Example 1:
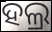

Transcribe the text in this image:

ହଲ୍ର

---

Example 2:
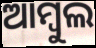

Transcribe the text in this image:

ଆମ୍ବୁଲ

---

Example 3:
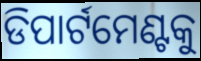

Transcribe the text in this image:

ଡିପାର୍ଟମେଣ୍ଟକୁ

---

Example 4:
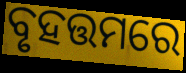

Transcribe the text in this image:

ବୃହତ୍ତମରେ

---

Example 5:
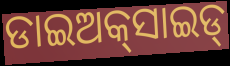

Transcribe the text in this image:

ଡାଇଅକ୍‌ସାଇଡ୍